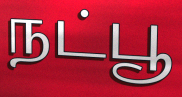
நட்பூ